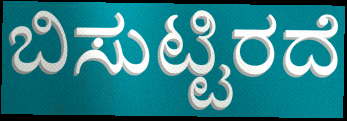
ಬಿಸುಟ್ಟಿರದೆ